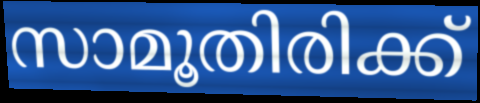
സാമൂതിരിക്ക്